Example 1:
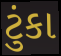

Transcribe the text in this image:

ટુંકા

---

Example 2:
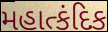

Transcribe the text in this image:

મહાત્કંદિક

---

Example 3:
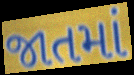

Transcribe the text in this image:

જાતમાં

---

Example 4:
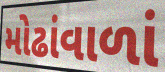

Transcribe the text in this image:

મોઢાંવાળાં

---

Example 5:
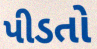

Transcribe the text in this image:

પીડતો